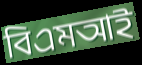
বিএমআই